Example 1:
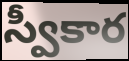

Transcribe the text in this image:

స్వీకార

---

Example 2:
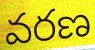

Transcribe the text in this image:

వరణ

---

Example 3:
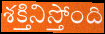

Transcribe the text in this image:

శక్తినిస్తోంది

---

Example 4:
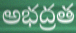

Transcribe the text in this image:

అభద్రత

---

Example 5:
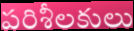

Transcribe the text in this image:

పరిశీలకులు